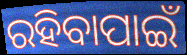
ରହିବାପାଇଁ